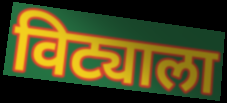
विट्याला